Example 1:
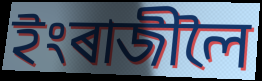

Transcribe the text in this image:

ইংৰাজীলৈ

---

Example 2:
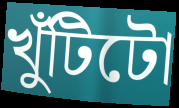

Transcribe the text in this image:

খুঁটিটো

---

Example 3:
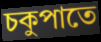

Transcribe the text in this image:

চকুপাতে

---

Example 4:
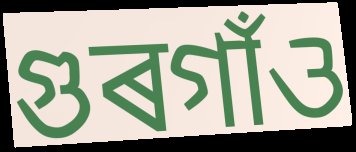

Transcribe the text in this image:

গুৰগাঁও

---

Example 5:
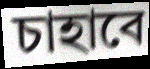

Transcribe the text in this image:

চাহাবে